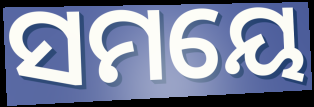
ସମୟେ